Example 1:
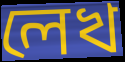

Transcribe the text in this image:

লেখ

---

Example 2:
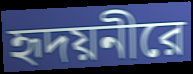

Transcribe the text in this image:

হৃদয়নীরে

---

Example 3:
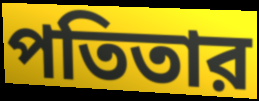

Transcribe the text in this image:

পতিতার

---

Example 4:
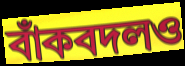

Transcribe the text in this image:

বাঁকবদলও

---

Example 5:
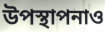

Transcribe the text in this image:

উপস্থাপনাও